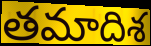
తమాదిశ